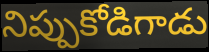
నిప్పుకోడిగాడు